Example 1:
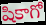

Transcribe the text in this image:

షికాగో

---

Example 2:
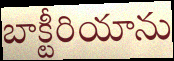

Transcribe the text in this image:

బాక్టీరియాను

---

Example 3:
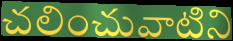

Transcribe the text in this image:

చలించువాటిని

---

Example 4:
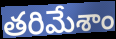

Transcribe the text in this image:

తరిమేశాం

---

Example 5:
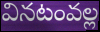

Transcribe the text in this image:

వినటంవల్ల